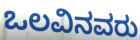
ಒಲವಿನವರು